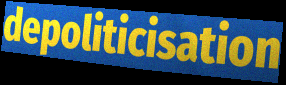
depoliticisation